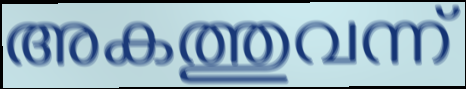
അകത്തുവന്ന്